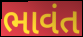
ભાવંત